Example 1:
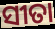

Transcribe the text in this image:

ସୀତା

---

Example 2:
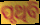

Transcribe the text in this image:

ପୃଥିବି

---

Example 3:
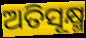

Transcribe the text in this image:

ଅତିସୂକ୍ଷ୍ମ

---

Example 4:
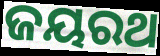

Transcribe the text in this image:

ଜୟରଥ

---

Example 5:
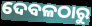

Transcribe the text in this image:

ଦେବଳଠାରୁ